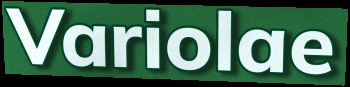
Variolae